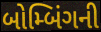
બોમ્બિંગની